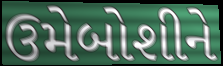
ઉમેબોશીને